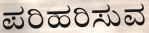
ಪರಿಹರಿಸುವ